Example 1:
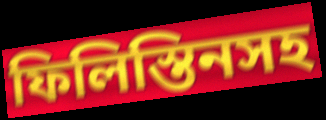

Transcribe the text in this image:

ফিলিস্তিনসহ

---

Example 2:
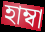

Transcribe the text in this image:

হাম্বা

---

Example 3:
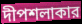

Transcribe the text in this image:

দীপশলাকার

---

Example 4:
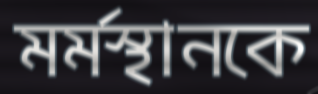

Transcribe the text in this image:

মর্মস্থানকে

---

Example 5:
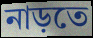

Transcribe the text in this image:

নাড়তে